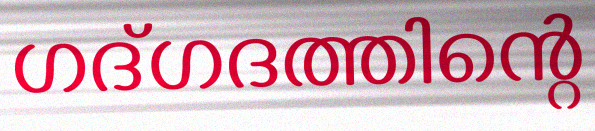
ഗദ്ഗദത്തിന്റെ